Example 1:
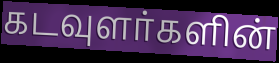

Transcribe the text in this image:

கடவுளர்களின்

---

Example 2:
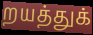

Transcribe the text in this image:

றயத்துக்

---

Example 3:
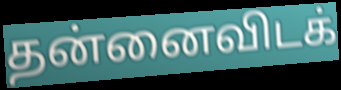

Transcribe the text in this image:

தன்னைவிடக்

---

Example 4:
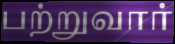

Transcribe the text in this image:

பற்றுவார்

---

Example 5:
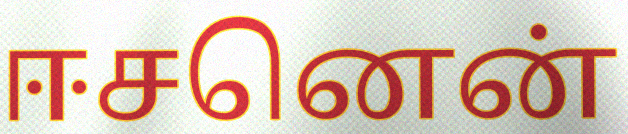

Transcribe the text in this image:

ஈசனென்